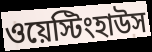
ওয়েস্টিংহাউস